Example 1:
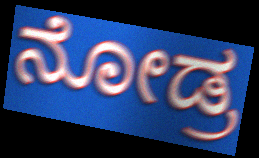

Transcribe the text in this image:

ನೋಡ್ರ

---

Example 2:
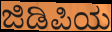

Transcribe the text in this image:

ಜಿಡಿಪಿಯ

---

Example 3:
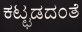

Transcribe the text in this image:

ಕಟ್ಟಡದಂತೆ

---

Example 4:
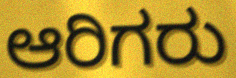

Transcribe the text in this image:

ಆರಿಗರು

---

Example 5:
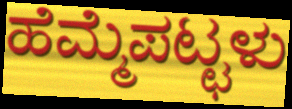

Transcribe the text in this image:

ಹೆಮ್ಮೆಪಟ್ಟಳು